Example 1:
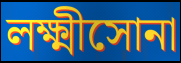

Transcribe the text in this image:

লক্ষ্মীসোনা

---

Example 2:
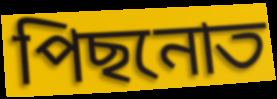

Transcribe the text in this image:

পিছনোত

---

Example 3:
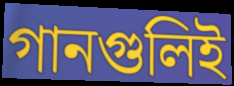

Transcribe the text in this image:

গানগুলিই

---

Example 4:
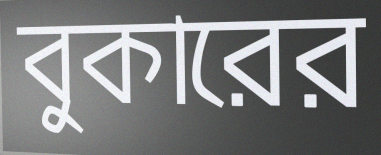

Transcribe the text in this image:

বুকারের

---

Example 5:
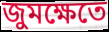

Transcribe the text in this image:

জুমক্ষেতে